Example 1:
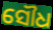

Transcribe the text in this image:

ସୌଧ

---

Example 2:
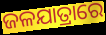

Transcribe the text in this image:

ଜଳଯାତ୍ରାରେ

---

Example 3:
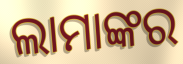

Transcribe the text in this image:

ଲାମାଙ୍କର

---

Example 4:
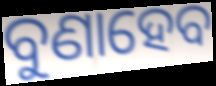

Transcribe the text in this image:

ବୁଣାହେବ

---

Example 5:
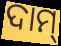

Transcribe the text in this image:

ଦାମ୍